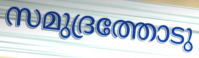
സമുദ്രത്തോടു